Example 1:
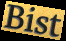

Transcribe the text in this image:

Bist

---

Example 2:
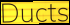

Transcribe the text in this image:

Ducts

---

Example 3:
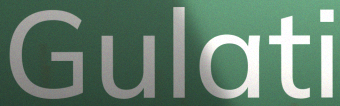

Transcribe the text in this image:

Gulati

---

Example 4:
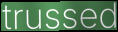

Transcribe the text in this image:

trussed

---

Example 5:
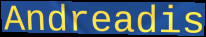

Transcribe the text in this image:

Andreadis